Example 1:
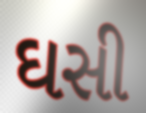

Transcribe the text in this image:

ઘસી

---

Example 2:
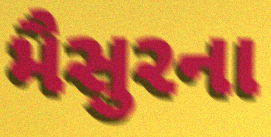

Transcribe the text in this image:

મૈસુરના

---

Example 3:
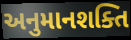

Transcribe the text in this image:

અનુમાનશક્તિ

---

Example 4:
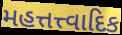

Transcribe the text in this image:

મહત્તત્ત્વાદિક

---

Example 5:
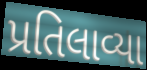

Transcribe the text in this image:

પ્રતિલાવ્યા